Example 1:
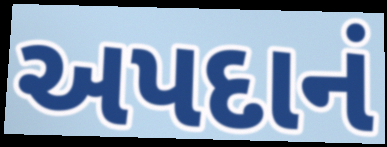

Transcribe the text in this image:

અપદાનં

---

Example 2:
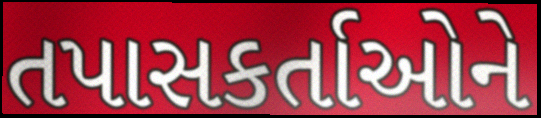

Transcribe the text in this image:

તપાસકર્તાઓને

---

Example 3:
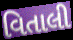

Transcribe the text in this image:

વિતાલી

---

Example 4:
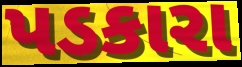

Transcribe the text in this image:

પડકારા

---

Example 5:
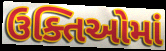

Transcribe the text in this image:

ઉક્તિઓમાં